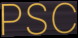
PSC